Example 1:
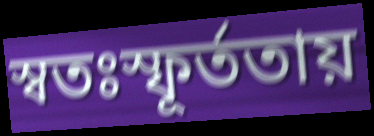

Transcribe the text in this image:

স্বতঃস্ফূর্ততায়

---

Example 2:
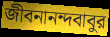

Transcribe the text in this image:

জীবনানন্দবাবুর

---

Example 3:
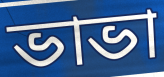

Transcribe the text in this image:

ভাভা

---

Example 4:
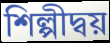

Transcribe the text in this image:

শিল্পীদ্বয়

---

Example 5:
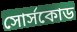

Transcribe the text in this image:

সোর্সকোড